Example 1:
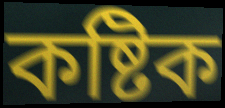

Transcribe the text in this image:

কষ্টিক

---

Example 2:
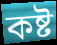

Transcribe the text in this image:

কষ্ট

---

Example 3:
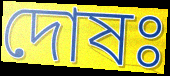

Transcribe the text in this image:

দোষঃ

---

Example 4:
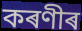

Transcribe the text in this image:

কৰণীৰ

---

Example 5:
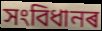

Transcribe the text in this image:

সংবিধানৰ